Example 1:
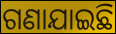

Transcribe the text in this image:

ଗଣାଯାଇଛି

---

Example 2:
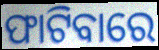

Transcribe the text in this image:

ଫାଟିବାରେ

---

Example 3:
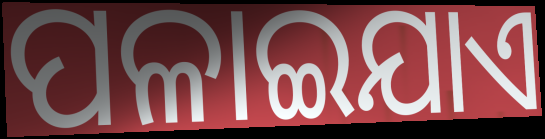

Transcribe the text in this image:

ପଳାଇଯାଏ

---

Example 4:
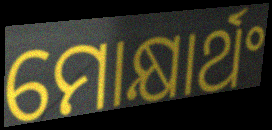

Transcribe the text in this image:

ମୋକ୍ଷାର୍ଥଂ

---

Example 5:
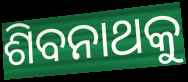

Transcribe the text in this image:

ଶିବନାଥକୁ